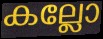
കല്ലോ